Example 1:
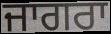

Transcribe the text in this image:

ਜਾਗਰਾ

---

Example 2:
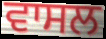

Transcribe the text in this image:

ਵਾਸਲ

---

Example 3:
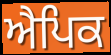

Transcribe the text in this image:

ਐਪਿਕ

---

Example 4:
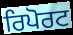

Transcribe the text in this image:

ਰਿਪੋਰਟ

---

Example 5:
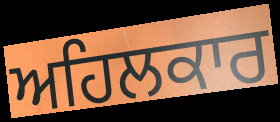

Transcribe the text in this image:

ਅਹਿਲਕਾਰ